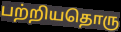
பற்றியதொரு